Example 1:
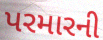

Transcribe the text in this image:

પરમારની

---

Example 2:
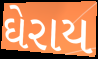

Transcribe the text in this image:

ઘેરાય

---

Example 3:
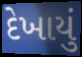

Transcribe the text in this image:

દેખાયું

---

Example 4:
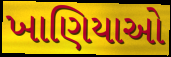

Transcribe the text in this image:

ખાણિયાઓ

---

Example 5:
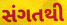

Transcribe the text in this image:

સંગતથી